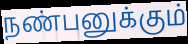
நண்பனுக்கும்